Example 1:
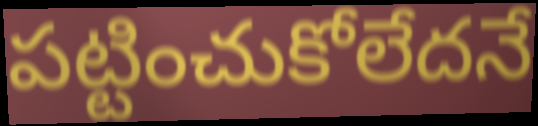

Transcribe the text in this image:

పట్టించుకోలేదనే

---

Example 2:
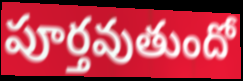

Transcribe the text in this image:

పూర్తవుతుందో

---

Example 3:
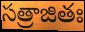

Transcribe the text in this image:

సత్రాజితః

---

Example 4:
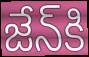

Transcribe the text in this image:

జేన్‌కి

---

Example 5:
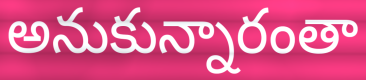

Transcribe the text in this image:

అనుకున్నారంతా